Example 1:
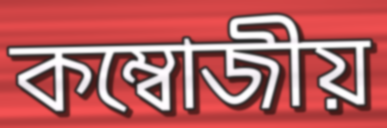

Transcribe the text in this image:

কম্বোজীয়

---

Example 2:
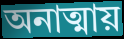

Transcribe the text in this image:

অনাত্মায়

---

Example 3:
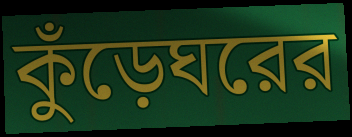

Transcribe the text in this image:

কুঁড়েঘরের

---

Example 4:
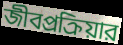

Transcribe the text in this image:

জীবপ্রক্রিয়ার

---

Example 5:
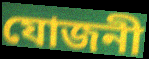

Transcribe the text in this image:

যোজনী